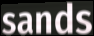
sands